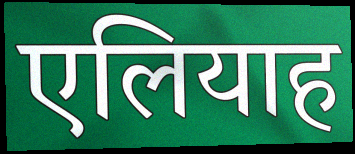
एलियाह